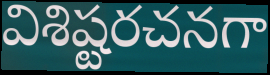
విశిష్టరచనగా